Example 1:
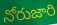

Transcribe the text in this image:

నోరుజారి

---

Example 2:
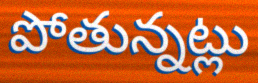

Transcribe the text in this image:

పోతున్నట్లు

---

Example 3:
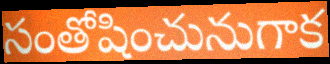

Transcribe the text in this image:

సంతోషించునుగాక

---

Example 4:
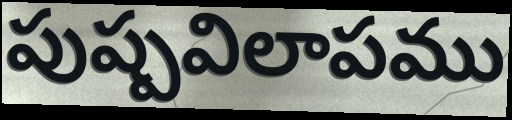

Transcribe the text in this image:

పుష్పవిలాపము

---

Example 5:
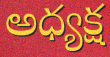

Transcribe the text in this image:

అధ్యక్ష